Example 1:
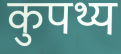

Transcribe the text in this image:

कुपथ्य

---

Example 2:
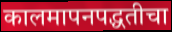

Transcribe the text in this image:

कालमापनपद्धतीचा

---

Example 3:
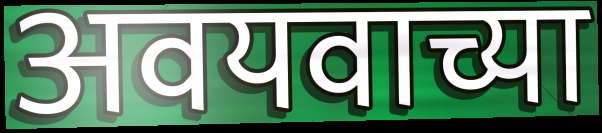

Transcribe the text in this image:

अवयवाच्या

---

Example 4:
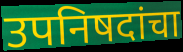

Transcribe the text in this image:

उपनिषदांचा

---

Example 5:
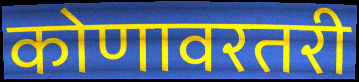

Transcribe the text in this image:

कोणावरतरी